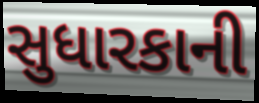
સુધારકાની